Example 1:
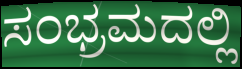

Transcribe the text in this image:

ಸಂಭ್ರಮದಲ್ಲಿ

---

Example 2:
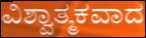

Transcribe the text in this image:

ವಿಶ್ವಾತ್ಮಕವಾದ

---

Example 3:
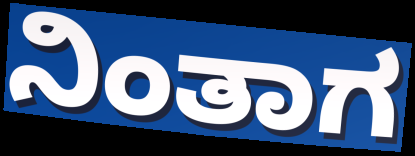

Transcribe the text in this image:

ನಿಂತಾಗ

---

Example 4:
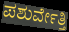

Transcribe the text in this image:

ಪಶುರ್ವೇತ್ತಿ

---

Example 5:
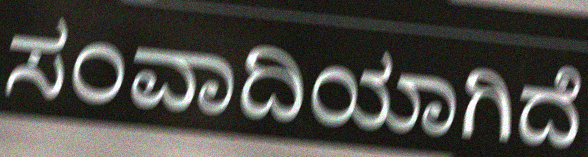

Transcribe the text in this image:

ಸಂವಾದಿಯಾಗಿದೆ